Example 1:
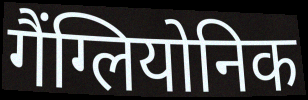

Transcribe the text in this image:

गैंग्लियोनिक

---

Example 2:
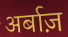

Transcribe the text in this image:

अर्बाज़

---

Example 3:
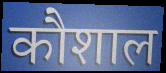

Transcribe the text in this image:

कौशाल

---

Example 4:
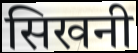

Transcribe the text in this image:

सिखनी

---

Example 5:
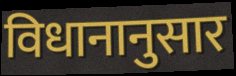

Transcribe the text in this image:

विधानानुसार